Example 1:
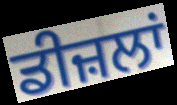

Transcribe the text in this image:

ਡੀਜ਼ਲਾਂ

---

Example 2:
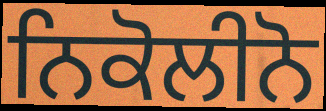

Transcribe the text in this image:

ਨਿਕੋਲੀਨੋ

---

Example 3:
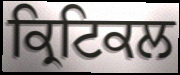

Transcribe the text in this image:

ਕ੍ਰਿਟਿਕਲ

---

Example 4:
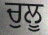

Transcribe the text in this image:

ਚੁਲੂ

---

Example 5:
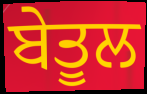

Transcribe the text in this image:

ਬੇਤੂਲ